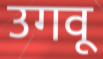
उगवू